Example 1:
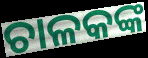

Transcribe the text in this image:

ଚାଳକଙ୍କ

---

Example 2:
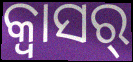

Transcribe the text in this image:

କ୍ୱାସର୍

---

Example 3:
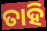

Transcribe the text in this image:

ତାହି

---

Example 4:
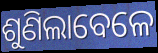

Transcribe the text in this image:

ଶୁଣିଲାବେଳେ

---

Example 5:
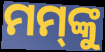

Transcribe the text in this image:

ମମ୍‌ଙ୍କୁ